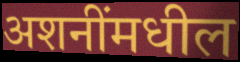
अशनींमधील